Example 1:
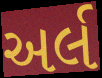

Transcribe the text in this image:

અર્લ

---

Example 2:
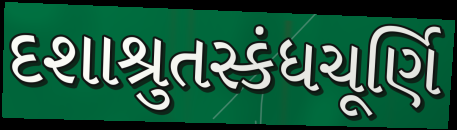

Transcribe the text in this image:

દશાશ્રુતસ્કંધચૂર્ણિ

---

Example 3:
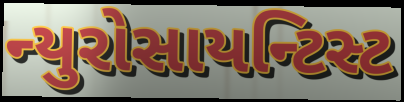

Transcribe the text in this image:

ન્યુરોસાયન્ટિસ્ટ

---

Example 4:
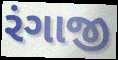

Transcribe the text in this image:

રંગાજી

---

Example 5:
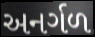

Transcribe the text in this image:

અનર્ગળ